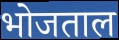
भोजताल